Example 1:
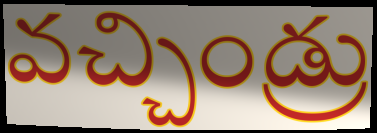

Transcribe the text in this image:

వచ్చిండ్రు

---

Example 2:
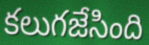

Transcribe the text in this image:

కలుగజేసింది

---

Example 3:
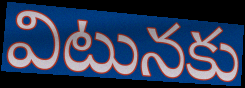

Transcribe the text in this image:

విటునకు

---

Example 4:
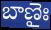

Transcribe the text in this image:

బాణైః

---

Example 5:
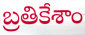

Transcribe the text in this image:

బ్రతికేశాం